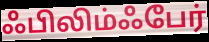
ஃபிலிம்ஃபேர்